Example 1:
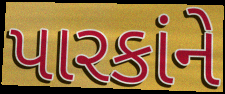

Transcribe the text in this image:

પારકાંને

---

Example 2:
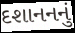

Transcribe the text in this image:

દશાનનનું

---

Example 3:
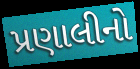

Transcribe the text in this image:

પ્રણાલીનો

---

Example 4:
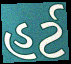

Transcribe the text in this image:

હર્ટ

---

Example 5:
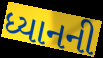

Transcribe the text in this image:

ધ્યાનની